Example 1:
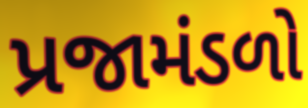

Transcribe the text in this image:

પ્રજામંડળો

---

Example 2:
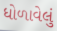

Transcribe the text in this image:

ધોળાવેલું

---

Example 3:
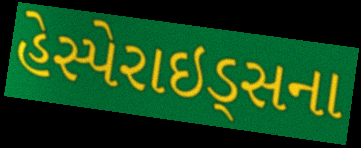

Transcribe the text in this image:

હેસ્પેરાઇડ્સના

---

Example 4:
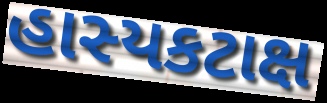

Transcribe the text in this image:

હાસ્યકટાક્ષ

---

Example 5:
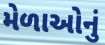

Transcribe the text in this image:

મેળાઓનું